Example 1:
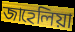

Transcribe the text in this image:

জাহেলিয়া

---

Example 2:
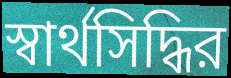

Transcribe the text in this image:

স্বার্থসিদ্ধির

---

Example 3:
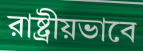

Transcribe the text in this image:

রাষ্ট্রীয়ভাবে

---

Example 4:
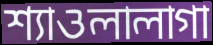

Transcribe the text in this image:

শ্যাওলালাগা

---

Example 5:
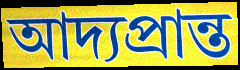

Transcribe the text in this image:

আদ্যপ্রান্ত